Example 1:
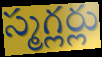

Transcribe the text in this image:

స్మగ్లర్లు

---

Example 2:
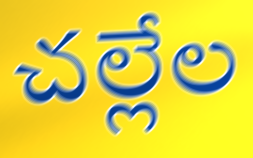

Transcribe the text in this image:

చల్లేల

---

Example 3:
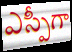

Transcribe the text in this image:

ఎస్పీగా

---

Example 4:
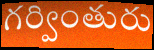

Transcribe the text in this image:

గర్వింతురు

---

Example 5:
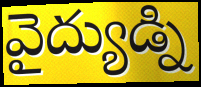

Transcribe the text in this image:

వైద్యుడ్ని